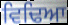
ਵਿਢਿਆ